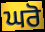
ਘਰੋ